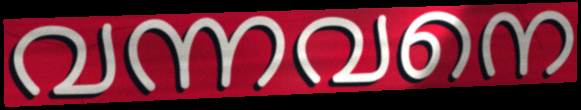
വന്നവനെ